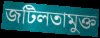
জটিলতামুক্ত